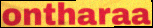
ontharaa